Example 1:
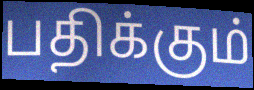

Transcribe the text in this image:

பதிக்கும்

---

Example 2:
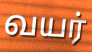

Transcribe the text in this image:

வயர்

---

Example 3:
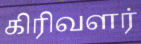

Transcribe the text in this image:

கிரிவளர்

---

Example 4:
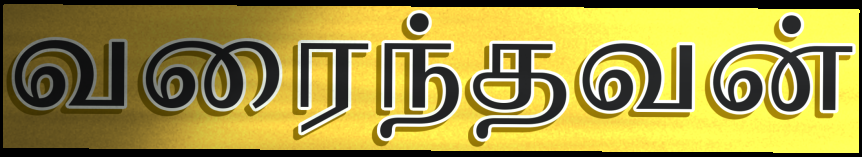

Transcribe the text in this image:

வரைந்தவன்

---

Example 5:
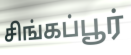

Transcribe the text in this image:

சிங்கப்பூர்